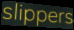
slippers